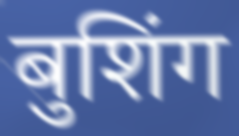
बुशिंग